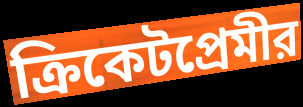
ক্রিকেটপ্রেমীর